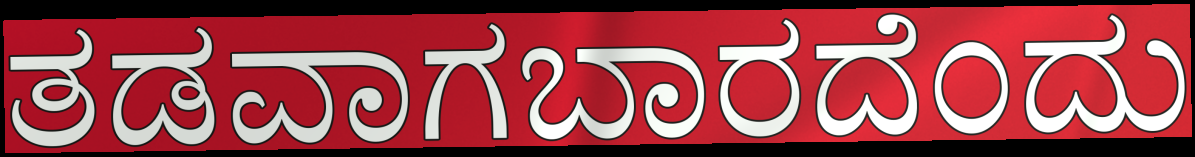
ತಡವಾಗಬಾರದೆಂದು